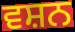
ਵਸ਼ਨ